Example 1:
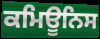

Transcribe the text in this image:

ਕਮਿਊਨਿਸ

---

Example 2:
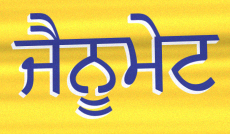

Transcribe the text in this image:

ਜੈਨੂਮੇਟ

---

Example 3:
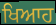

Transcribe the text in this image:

ਖਿਆਹ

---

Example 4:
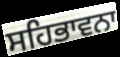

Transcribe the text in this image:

ਸਹਿਭਾਵਨਾ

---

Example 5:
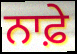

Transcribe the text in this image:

ਨਾਫ਼ੇ